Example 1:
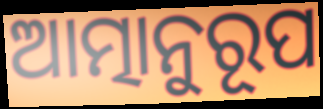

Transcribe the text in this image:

ଆତ୍ମାନୁରୂପ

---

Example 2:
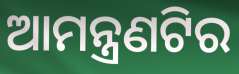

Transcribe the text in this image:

ଆମନ୍ତ୍ରଣଟିର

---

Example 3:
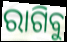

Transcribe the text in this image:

ରାଗିବୁ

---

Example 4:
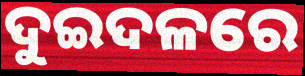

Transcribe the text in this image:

ଦୁଇଦଳରେ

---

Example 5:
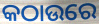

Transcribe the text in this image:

କଠାଉରେ